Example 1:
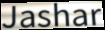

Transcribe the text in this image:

Jashar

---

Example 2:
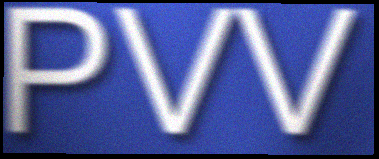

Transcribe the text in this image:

PVV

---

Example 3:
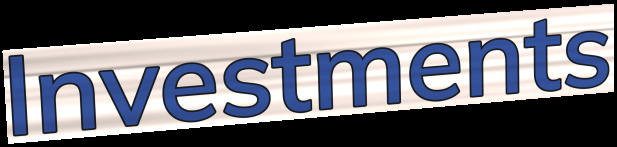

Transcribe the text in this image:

Investments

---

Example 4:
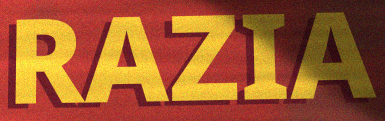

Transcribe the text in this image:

RAZIA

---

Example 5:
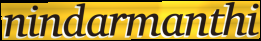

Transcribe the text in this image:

nindarmanthi